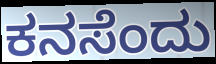
ಕನಸೆಂದು